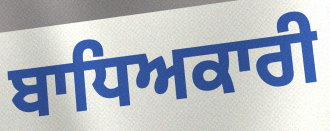
ਬਾਧਿਅਕਾਰੀ